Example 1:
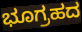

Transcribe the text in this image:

ಭೂಗ್ರಹದ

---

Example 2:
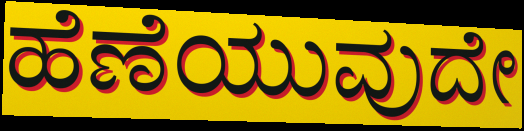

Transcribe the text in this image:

ಹೆಣೆಯುವುದೇ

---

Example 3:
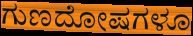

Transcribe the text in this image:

ಗುಣದೋಷಗಳೂ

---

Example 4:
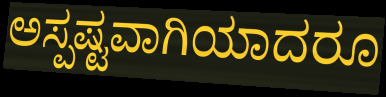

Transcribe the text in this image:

ಅಸ್ಪಷ್ಟವಾಗಿಯಾದರೂ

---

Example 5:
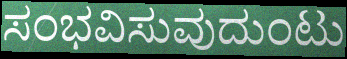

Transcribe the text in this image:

ಸಂಭವಿಸುವುದುಂಟು